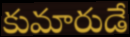
కుమారుడే